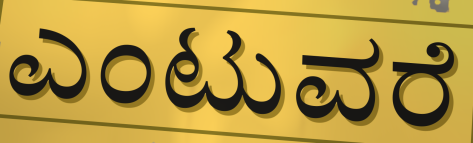
ಎಂಟುವರೆ